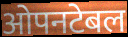
ओपनटेबल